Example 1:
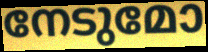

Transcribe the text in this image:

നേടുമോ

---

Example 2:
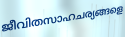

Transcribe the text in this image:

ജീവിതസാഹചര്യങ്ങളെ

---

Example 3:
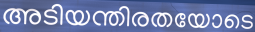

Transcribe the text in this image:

അടിയന്തിരതയോടെ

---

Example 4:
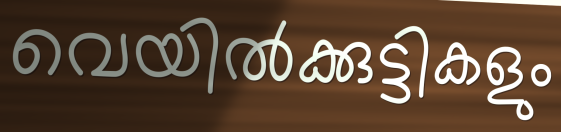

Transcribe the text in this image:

വെയിൽക്കുട്ടികളും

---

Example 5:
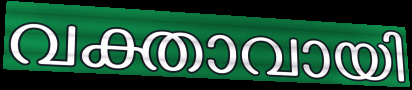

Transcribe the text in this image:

വക്താവായി